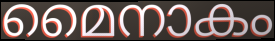
മൈനാകം